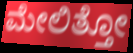
ಮೇಲಿತ್ತೋ